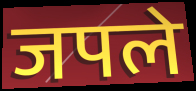
जपले